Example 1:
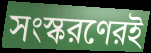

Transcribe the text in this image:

সংস্করণেরই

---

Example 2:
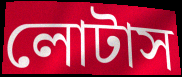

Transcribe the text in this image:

লোটাস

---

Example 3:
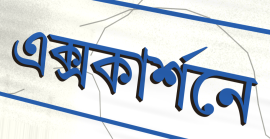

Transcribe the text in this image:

এক্সকার্শনে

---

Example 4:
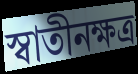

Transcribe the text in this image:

স্বাতীনক্ষত্র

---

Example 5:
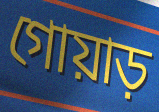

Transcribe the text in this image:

গোয়াড়